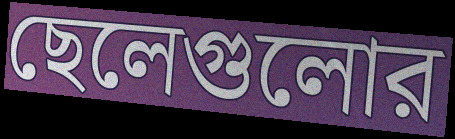
ছেলেগুলোর